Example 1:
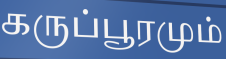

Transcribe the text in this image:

கருப்பூரமும்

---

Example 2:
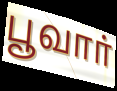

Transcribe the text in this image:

பூவார்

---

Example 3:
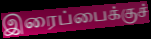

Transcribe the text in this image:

இரைப்பைக்குச்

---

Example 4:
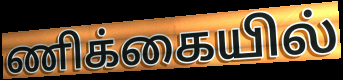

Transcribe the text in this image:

ணிக்கையில்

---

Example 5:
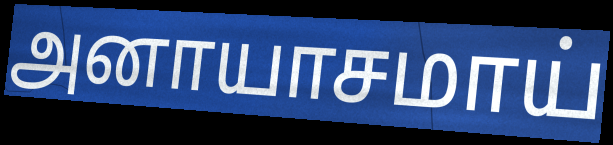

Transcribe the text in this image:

அனாயாசமாய்